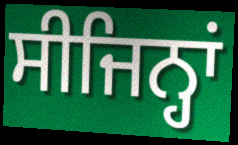
ਸੀਜਿਨ੍ਹਾਂ